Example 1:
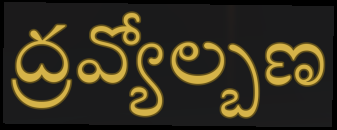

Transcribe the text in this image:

ద్రవ్యోల్బణ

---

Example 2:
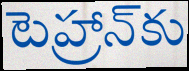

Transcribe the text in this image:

టెహ్రాన్‌కు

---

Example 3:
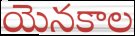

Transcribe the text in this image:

యెనకాల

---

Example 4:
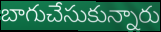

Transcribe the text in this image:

బాగుచేసుకున్నారు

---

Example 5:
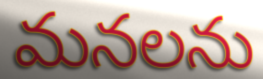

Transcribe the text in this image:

మనలను